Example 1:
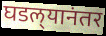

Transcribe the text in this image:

घडल्यानंतर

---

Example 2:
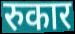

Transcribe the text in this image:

रुकार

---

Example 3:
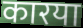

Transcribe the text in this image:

कारया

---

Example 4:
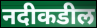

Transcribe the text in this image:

नदीकडील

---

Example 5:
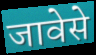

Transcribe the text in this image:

जावेसे